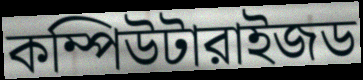
কম্পিউটারাইজড